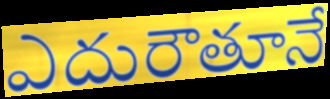
ఎదురౌతూనే